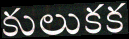
కులుకక